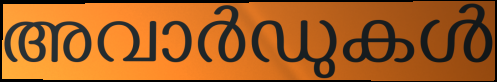
അവാർഡുകൾ